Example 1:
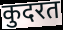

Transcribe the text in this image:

कुदरत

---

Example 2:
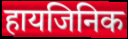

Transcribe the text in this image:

हायजिनिक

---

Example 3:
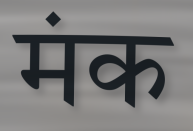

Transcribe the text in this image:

मंक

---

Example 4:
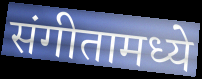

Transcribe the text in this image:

संगीतामध्ये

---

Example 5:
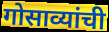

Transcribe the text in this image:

गोसाव्यांची